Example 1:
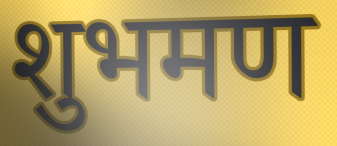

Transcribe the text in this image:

शुभमण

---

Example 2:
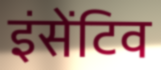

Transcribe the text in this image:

इंसेंटिव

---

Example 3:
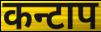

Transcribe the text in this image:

कन्टाप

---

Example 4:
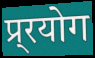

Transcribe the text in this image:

प्र्रयोग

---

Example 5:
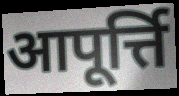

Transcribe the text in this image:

आपूर्त्ति